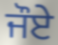
ਜੌਏ